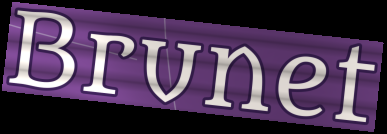
Brunet